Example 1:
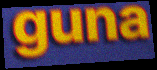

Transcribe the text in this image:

guna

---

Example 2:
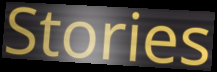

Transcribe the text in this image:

Stories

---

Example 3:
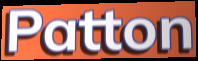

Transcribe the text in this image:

Patton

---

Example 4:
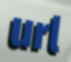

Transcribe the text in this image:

url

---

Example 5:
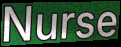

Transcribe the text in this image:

Nurse